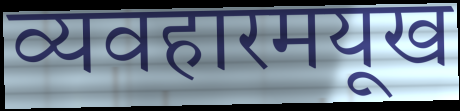
व्यवहारमयूख